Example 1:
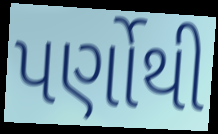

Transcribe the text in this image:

પર્ણોથી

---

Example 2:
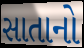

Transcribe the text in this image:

સાતાનો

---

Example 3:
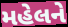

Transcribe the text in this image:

મહેલને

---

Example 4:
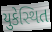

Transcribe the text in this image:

યુકેસ્થિત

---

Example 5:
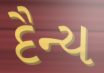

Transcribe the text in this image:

દૈન્ય